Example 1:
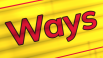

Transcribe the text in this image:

Ways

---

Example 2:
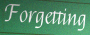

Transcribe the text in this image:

Forgetting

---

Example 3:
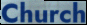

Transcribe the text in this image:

Church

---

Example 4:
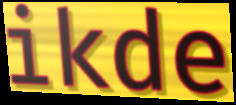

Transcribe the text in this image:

ikde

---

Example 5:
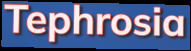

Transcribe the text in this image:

Tephrosia